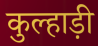
कुल्हाड़ी